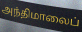
அந்திமாலைப்